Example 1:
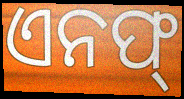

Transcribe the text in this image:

ଏନଫ୍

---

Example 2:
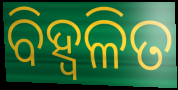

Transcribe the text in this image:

ବିହ୍ୱଳିତ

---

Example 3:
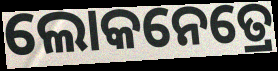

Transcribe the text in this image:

ଲୋକନେତ୍ରେ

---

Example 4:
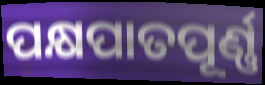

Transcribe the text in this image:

ପକ୍ଷପାତପୂର୍ଣ୍ଣ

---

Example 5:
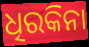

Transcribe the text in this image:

ଧିରକିନା